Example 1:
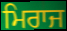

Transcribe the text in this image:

ਮਿਰਾਜ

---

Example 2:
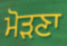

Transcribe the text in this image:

ਮੋੜਣਾ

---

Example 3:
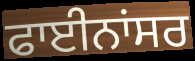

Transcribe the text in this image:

ਫਾਈਨਾਂਸਰ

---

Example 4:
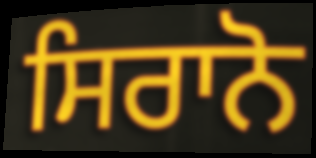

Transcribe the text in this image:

ਸਿਰਾਨੋ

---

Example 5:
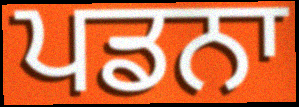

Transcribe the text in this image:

ਪਡਨਾ